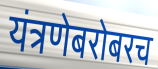
यंत्रणेबरोबरच